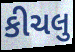
કીચલુ